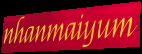
nhanmaiyum